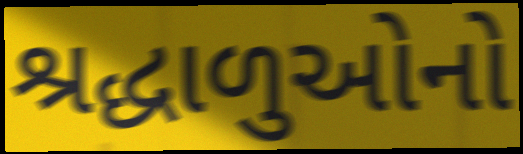
શ્રદ્ધાળુઓનો